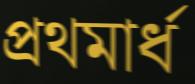
প্রথমার্ধ